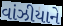
વાંઝીયાને